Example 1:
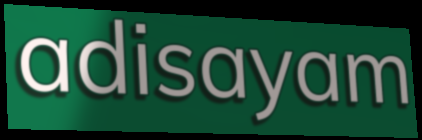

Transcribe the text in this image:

adisayam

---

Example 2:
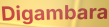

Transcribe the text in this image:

Digambara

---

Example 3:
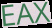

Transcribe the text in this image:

EAX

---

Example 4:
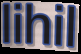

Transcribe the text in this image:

lihil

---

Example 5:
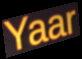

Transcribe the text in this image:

Yaar